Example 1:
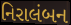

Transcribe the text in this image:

નિરાલંબન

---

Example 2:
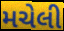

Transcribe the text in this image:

મચેલી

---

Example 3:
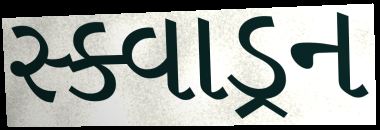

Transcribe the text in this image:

સ્ક્વાડ્રન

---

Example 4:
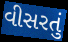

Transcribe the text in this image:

વીસરતું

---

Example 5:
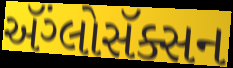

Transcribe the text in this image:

ઍંગ્લોસૅક્સન